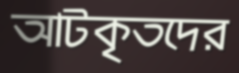
আটকৃতদের